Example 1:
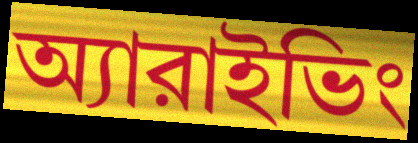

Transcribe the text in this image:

অ্যারাইভিং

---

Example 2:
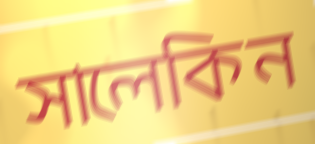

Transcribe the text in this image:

সালেকিন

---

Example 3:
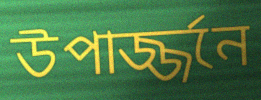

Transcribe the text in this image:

উপার্জ্জনে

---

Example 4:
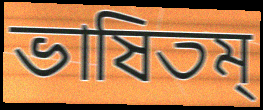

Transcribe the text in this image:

ভাষিতম্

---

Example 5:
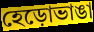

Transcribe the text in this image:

হেড়োভাঙা